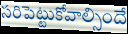
సరిపెట్టుకోవాల్సిందే